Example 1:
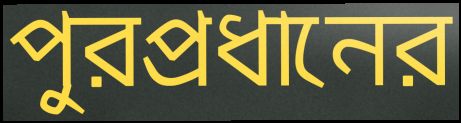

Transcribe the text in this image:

পুরপ্রধানের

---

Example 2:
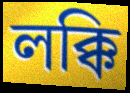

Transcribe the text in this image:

লক্কি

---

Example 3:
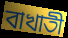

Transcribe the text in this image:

বাখাতী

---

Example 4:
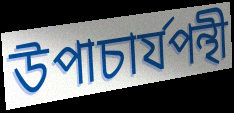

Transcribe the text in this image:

উপাচার্যপন্থী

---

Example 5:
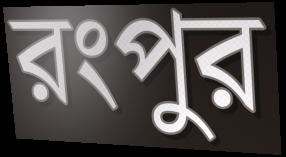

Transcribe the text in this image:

রংপুর